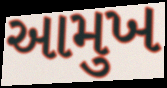
આમુખ